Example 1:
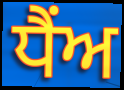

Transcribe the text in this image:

ਧੈਂਅ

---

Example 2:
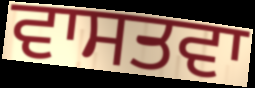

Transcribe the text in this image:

ਵਾਸਤਵਾ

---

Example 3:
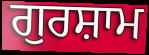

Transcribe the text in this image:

ਗੁਰਸ਼ਾਮ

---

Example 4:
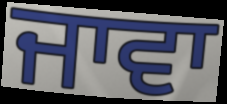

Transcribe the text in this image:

ਜਾਵਾ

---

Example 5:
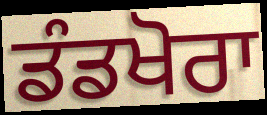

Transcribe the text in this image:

ਡੰਡਖੋਰਾ